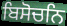
ਬਿਸੋਚਨਿ